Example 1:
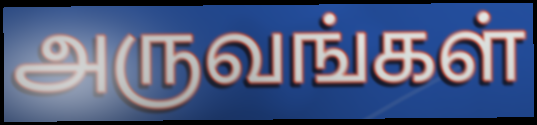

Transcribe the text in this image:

அருவங்கள்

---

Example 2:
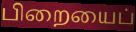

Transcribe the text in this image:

பிறையைப்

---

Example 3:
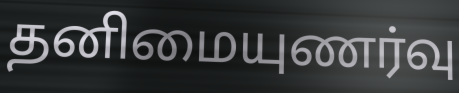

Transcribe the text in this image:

தனிமையுணர்வு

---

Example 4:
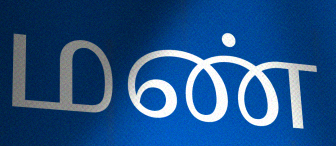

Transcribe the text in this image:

மண்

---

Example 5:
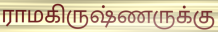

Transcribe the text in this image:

ராமகிருஷ்ணருக்கு